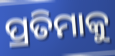
ପ୍ରତିମାକୁ